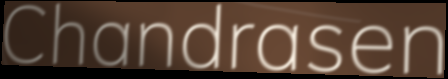
Chandrasen